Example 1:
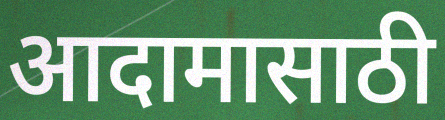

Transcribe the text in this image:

आदामासाठी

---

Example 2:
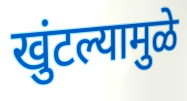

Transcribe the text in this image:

खुंटल्यामुळे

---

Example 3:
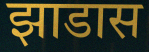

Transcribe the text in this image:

झाडास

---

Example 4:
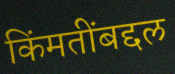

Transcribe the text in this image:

किंमतींबद्दल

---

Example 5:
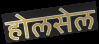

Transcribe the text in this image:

होलसेल